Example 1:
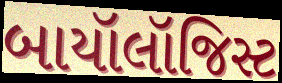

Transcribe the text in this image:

બાયૉલૉજિસ્ટ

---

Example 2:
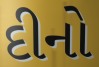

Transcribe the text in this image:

દીનો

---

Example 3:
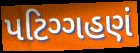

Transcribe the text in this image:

પટિગ્ગહણં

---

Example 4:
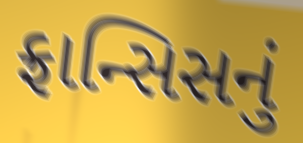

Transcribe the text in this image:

ફ્રાન્સિસનું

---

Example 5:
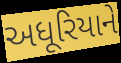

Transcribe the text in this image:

અધૂરિયાને